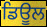
ਡਿਊਲ